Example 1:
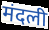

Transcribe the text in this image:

मंदली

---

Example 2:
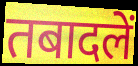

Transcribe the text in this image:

तबादलें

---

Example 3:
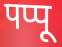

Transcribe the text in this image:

पप्‍पू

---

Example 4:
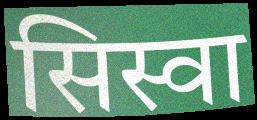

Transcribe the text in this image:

सिस्वा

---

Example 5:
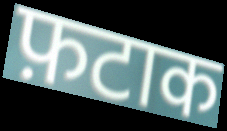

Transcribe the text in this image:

फ़टाक